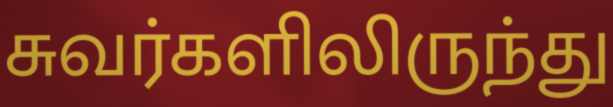
சுவர்களிலிருந்து